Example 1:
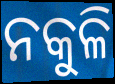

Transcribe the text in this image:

ନକୁଳି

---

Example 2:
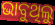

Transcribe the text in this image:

ଭାବୁଥିଲୁ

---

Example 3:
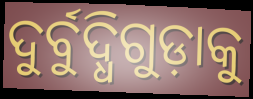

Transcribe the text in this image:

ଦୁର୍ବୁଦ୍ଧିଗୁଡ଼ାକୁ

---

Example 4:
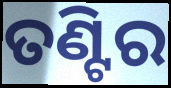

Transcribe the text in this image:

ତଣ୍ଟିର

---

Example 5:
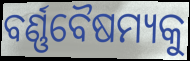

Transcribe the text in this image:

ବର୍ଣ୍ଣବୈଷମ୍ୟକୁ